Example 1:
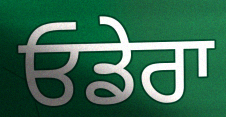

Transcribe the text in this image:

ਓਡੇਰਾ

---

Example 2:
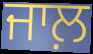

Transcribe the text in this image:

ਜਾਲ਼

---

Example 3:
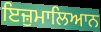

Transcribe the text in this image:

ਇਜ਼ੁਮਾਲਿਆਨ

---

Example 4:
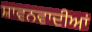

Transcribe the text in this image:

ਸ਼ਾਵਨਵਾਦੀਆਂ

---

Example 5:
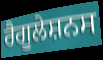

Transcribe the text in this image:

ਰੈਗੂਲੇਸ਼ਨਸ